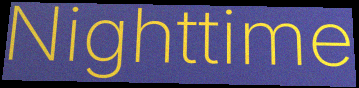
Nighttime